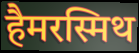
हैमरस्मिथ